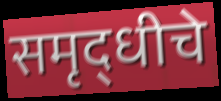
समृद्धीचे